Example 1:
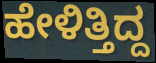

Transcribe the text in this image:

ಹೇಳಿತ್ತಿದ್ದ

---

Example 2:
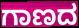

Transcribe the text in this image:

ಗಾಣದ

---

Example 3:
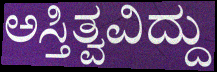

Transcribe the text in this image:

ಅಸ್ತಿತ್ವವಿದ್ದು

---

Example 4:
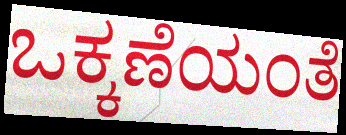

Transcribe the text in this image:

ಒಕ್ಕಣೆಯಂತೆ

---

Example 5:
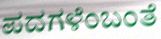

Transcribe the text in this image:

ಪದಗಳೆಂಬಂತೆ